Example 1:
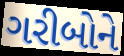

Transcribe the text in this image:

ગરીબોને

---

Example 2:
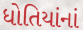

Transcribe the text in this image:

ધોતિયાંનાં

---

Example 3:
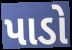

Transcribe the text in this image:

પાડો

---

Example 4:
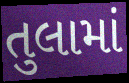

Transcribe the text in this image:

તુલામાં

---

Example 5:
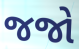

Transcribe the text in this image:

જજો